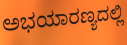
ಅಭಯಾರಣ್ಯದಲ್ಲಿ